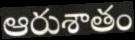
ఆరుశాతం